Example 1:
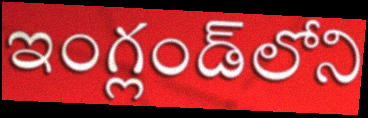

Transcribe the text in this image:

ఇంగ్లండ్‌లోని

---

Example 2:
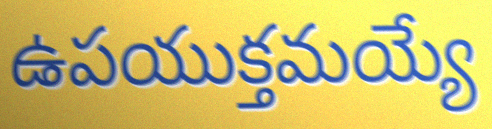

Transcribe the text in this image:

ఉపయుక్తమయ్యే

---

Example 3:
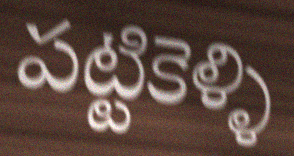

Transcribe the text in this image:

పట్టికెళ్ళి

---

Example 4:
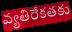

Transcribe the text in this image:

వ్యతిరేకతకు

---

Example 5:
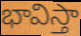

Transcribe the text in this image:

భావిస్తా